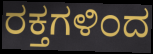
ರಕ್ತಗಳಿಂದ